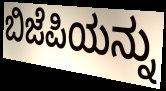
ಬಿಜೆಪಿಯನ್ನು